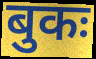
बुकः